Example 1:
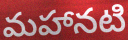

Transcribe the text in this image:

మహానటి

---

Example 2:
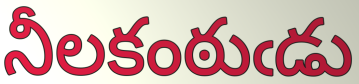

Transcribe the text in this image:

నీలకంఠుఁడు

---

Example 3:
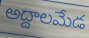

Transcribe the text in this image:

అద్దాలమేడ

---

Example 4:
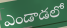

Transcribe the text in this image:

ఎండాడలో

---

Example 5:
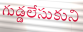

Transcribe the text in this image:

గుడ్డలేసుకుని